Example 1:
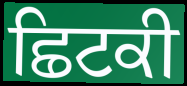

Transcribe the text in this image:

ਛਿਟਕੀ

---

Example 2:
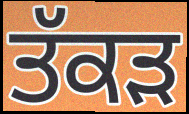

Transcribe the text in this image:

ਤੱਕੜ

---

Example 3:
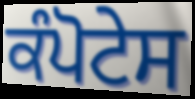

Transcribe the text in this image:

ਕੰਪੋਟੇਸ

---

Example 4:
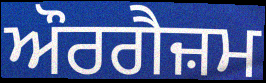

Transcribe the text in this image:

ਔਰਗੈਜ਼ਮ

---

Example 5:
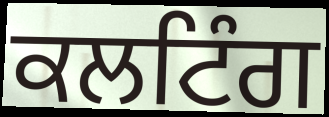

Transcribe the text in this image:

ਕਲਟਿੰਗ